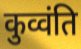
कुव्वंति